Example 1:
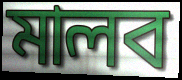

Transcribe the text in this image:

মালব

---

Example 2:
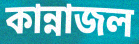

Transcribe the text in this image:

কান্নাজল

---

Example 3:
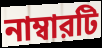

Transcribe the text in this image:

নাম্বারটি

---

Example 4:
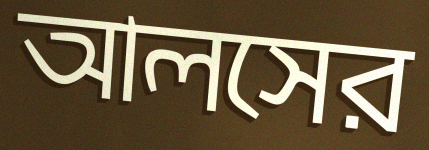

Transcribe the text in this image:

আলসের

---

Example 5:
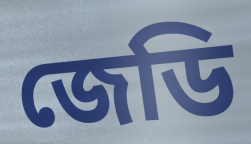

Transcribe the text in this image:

জেডি